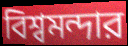
বিশ্বমন্দার